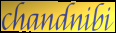
chandnibi